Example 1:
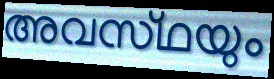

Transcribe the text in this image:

അവസ്‌ഥയും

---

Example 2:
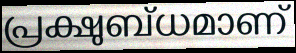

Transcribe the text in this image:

പ്രക്ഷുബ്ധമാണ്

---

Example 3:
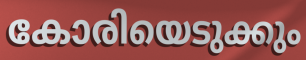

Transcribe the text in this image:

കോരിയെടുക്കും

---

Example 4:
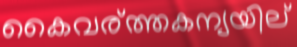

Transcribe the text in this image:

കൈവര്ത്തകന്യയില്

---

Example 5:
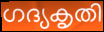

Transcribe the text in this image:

ഗദ്യകൃതി